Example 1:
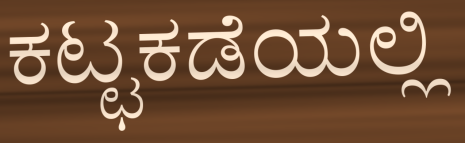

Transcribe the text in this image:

ಕಟ್ಟಕಡೆಯಲ್ಲಿ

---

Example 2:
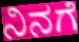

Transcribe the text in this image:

ನಿನಗೆ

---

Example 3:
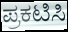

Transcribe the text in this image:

ಪ್ರಕಟಿಸಿ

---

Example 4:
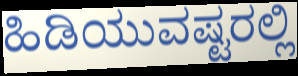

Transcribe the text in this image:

ಹಿಡಿಯುವಷ್ಟರಲ್ಲಿ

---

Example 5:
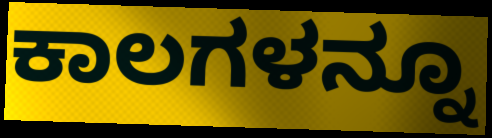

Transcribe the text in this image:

ಕಾಲಗಳನ್ನೂ